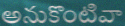
అనుకొంటివా